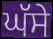
ਘੱਸੇ